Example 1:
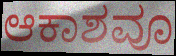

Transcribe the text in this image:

ಆಕಾಶವೂ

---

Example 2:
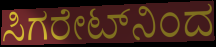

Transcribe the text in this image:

ಸಿಗರೇಟ್‌ನಿಂದ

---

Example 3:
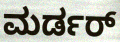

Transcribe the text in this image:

ಮರ್ಡರ್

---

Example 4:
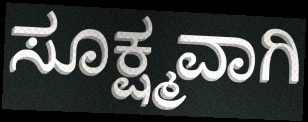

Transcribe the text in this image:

ಸೂಕ್ಷ್ಮವಾಗಿ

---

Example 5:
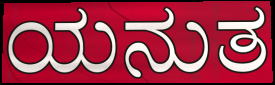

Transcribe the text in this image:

ಯನುತ